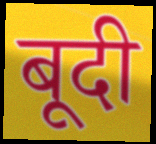
बूदी